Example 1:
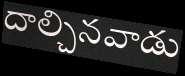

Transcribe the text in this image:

దాల్చినవాడు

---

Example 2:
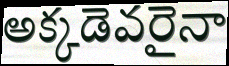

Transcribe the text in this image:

అక్కడెవరైనా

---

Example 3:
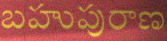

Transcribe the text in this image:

బహుపురాణ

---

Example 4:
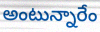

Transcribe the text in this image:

అంటున్నారేం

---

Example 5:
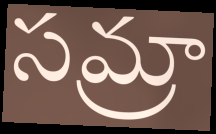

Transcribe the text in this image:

సమ్రా